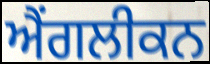
ਐਂਗਲੀਕਨ